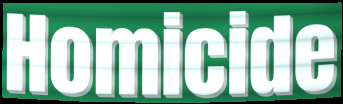
Homicide